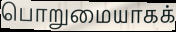
பொறுமையாகக்